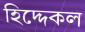
হিদ্দেকল